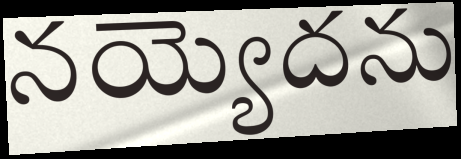
నయ్యెదను